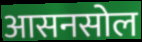
आसनसोल